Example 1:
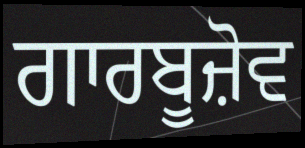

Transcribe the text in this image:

ਗਾਰਬੂਜ਼ੋਵ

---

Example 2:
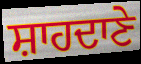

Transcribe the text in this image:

ਸ਼ਾਹਦਾਣੇ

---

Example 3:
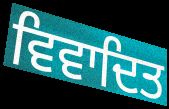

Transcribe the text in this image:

ਵਿਵਾਦਿਤ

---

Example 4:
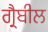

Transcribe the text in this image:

ਗ੍ਰੈਬੀਲ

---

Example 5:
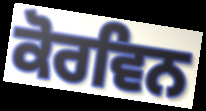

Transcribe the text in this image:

ਕੋਰਵਿਨ